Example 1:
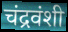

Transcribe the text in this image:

चंद्रवंशी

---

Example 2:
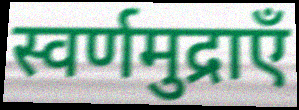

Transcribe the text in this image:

स्वर्णमुद्राएँ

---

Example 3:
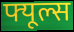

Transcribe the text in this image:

फ्यूल्स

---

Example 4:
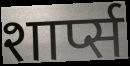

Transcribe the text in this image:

शार्प्स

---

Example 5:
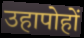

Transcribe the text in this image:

उहापोहों